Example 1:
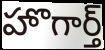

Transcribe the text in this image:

హొగార్త్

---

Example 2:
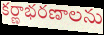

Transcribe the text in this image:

కర్ణాభరణాలను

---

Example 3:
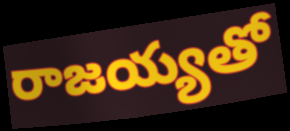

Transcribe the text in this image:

రాజయ్యతో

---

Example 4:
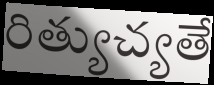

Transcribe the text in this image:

రిత్యుచ్యతే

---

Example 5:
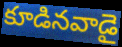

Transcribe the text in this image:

కూడినవాడై